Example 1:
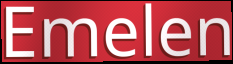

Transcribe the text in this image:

Emelen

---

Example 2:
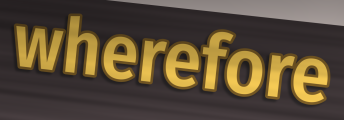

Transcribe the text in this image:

wherefore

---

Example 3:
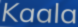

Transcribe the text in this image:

Kaala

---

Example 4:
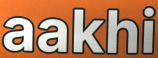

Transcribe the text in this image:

aakhi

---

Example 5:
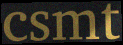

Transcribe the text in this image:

csmt